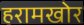
हरामखोर